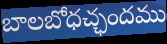
బాలబోధచ్ఛందము